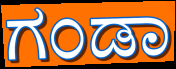
ಗಂಡಾ